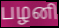
பழனி